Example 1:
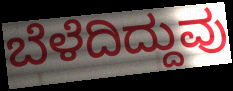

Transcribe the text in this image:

ಬೆಳೆದಿದ್ದುವು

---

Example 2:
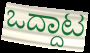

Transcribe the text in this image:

ಒದ್ದಾಟ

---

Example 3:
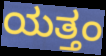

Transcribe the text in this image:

ಯತ್ತಂ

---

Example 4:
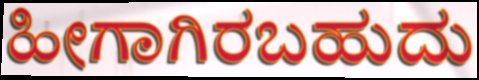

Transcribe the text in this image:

ಹೀಗಾಗಿರಬಹುದು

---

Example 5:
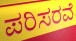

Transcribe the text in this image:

ಪರಿಸರವೆ